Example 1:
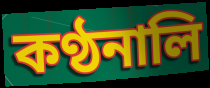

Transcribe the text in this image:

কণ্ঠনালি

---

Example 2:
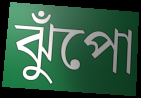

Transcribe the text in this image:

ঝুঁপো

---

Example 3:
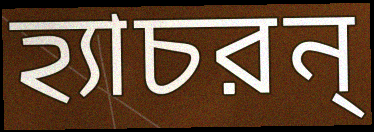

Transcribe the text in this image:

হ্যাচরন্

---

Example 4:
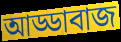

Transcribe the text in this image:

আড্ডাবাজ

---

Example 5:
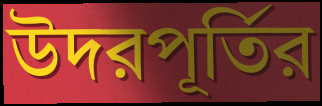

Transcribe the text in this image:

উদরপূর্তির